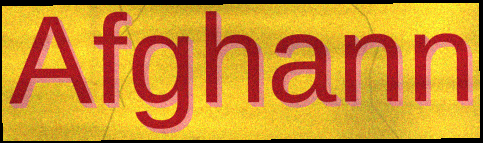
Afghann